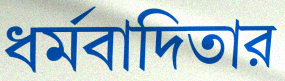
ধর্মবাদিতার